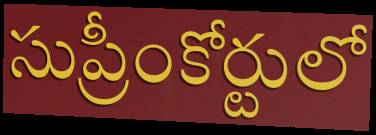
సుప్రీంకోర్టులో